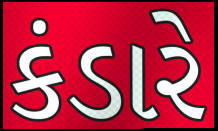
કંડારે